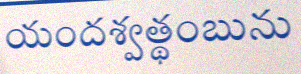
యందశ్వత్థంబును